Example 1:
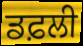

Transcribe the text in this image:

ਡਫ਼ਲੀ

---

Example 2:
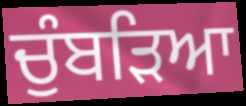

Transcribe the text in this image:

ਚੁੰਬੜਿਆ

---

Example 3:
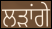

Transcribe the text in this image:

ਲੜਾਂਗੇ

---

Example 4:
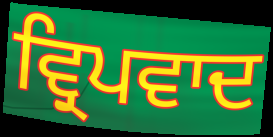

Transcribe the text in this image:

ਵ੍ਰਿਪਵਾਦ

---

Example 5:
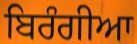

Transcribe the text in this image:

ਬਿਰੰਗੀਆ